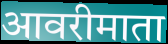
आवरीमाता